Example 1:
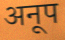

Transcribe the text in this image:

अनूप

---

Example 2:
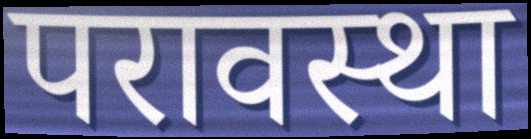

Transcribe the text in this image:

परावस्था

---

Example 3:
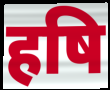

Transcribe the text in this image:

हषि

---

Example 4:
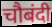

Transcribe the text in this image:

चौबंदी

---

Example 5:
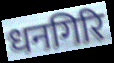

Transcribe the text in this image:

धनगिरि